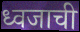
ध्वजाची